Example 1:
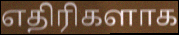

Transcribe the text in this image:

எதிரிகளாக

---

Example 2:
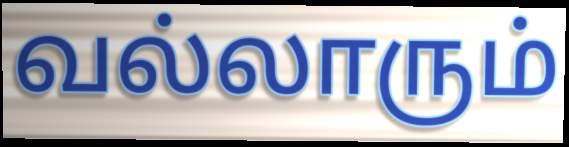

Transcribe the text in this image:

வல்லாரும்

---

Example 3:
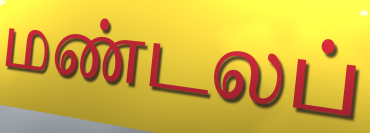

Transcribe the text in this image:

மண்டலப்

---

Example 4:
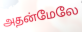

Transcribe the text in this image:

அதன்மேலே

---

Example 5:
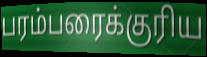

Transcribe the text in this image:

பரம்பரைக்குரிய